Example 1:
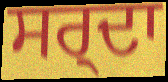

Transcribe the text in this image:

ਸਰ੍ਦਾ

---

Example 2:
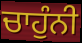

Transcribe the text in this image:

ਚਾਹੁੰਨੀ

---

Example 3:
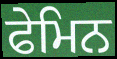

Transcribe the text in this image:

ਫੇਮਿਨ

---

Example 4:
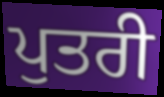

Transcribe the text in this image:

ਪੁਤਰੀ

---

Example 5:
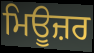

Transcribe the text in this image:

ਮਿਊਜ਼ਰ